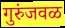
गुरुंजवळ